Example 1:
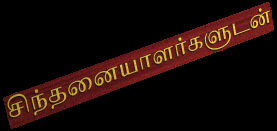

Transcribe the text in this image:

சிந்தனையாளர்களுடன்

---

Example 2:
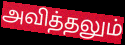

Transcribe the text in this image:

அவித்தலும்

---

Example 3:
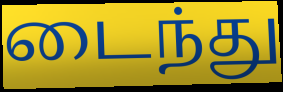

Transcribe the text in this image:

டைந்து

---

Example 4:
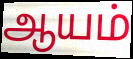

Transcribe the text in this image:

ஆயம்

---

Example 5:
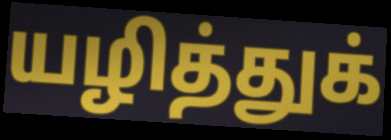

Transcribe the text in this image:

யழித்துக்